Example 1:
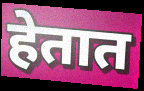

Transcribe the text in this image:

हेतात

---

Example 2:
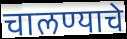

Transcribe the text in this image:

चालण्याचे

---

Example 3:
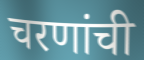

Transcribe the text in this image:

चरणांची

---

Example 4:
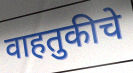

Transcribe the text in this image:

वाहतुकीचे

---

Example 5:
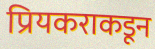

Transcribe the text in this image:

प्रियकराकडून